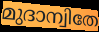
മുദാന്വിതേ